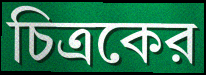
চিত্রকের